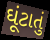
ઘૂંટાતું